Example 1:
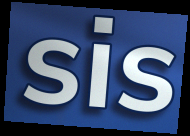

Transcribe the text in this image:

sis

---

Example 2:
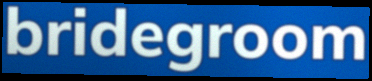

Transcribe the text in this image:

bridegroom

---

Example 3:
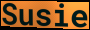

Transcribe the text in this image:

Susie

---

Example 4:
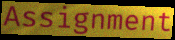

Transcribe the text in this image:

Assignment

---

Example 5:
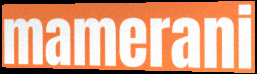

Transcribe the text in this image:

mamerani